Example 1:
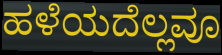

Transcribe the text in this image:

ಹಳೆಯದೆಲ್ಲವೂ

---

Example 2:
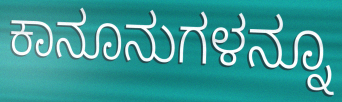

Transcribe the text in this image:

ಕಾನೂನುಗಳನ್ನೂ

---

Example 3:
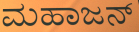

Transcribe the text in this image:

ಮಹಾಜನ್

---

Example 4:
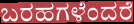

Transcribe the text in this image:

ಬರಹಗಳೆಂದರೆ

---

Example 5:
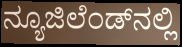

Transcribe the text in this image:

ನ್ಯೂಜಿಲೆಂಡ್‌ನಲ್ಲಿ